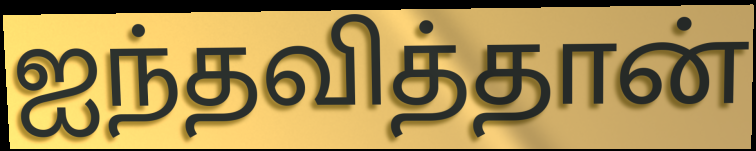
ஐந்தவித்தான்